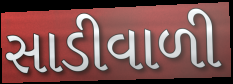
સાડીવાળી